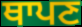
ਥਾਪਣ